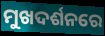
ମୁଖଦର୍ଶନରେ